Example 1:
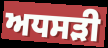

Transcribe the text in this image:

ਅਧਸੜੀ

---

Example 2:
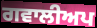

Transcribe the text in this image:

ਗਵਾਲੀਅਪ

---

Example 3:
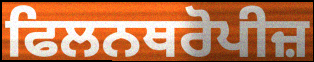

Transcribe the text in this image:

ਫਿਲਨਥਰੋਪੀਜ਼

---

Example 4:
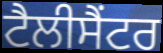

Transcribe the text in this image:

ਟੈਲੀਸੈਂਟਰ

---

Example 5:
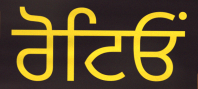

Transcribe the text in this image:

ਰੋਟਿਓਂ